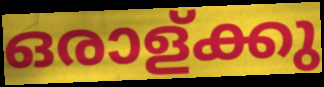
ഒരാള്ക്കു